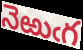
నెఱుఁగ